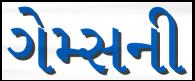
ગેમ્સની